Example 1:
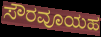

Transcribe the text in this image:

ಸೌರವೂಯಹ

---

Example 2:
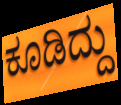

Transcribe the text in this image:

ಕೂಡಿದ್ದು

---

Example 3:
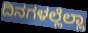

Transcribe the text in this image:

ದಿನಗಳಲ್ಲೆಲ್ಲಾ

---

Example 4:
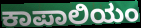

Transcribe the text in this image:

ಕಾಪಾಲಿಯಂ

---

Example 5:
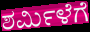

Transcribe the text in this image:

ಶರ್ಮಿಳೆಗೆ